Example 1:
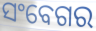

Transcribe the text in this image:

ସଂବେଗର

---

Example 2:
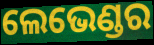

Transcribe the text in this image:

ଲେଭେଣ୍ଡର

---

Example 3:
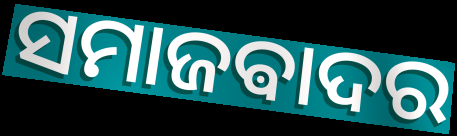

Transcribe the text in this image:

ସମାଜଵାଦର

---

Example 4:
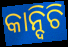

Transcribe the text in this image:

କାନ୍ଦିଚି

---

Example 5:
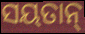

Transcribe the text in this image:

ସୟତାନ୍